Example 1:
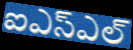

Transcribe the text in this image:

ఐఎస్ఎల్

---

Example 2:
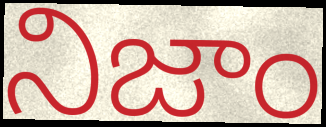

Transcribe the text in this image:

నిజాం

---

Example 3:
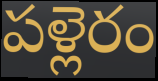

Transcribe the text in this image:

పళ్లెరం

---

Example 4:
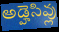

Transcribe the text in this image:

అడ్హెసివ్లు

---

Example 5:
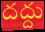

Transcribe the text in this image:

దద్దు